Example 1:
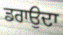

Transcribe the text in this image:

ਡਰਾਉਦਾ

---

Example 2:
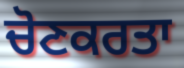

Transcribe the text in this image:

ਚੋਣਕਰਤਾ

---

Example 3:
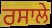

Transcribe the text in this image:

ਰਸਾਲੇ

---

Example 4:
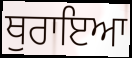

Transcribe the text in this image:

ਥੁਰਾਇਆ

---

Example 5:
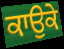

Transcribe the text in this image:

ਕਾਉਕੇ